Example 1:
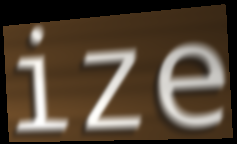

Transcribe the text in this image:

ize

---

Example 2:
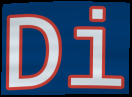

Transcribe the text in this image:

Di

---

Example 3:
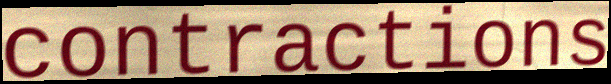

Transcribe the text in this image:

contractions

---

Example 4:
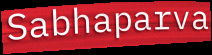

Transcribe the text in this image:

Sabhaparva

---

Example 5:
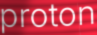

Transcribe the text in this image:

proton